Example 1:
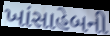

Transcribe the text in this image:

ખાંસાહેબની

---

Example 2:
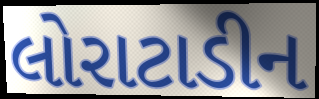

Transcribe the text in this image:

લોરાટાડીન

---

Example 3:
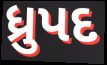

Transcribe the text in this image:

ધ્રુપદ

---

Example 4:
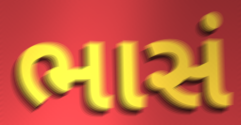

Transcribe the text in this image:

ભાસં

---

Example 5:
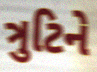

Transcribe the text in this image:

ત્રુટિને